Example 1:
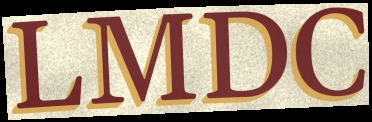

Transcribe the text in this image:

LMDC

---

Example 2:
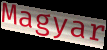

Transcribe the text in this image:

Magyar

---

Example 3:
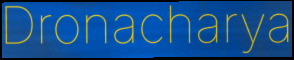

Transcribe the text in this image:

Dronacharya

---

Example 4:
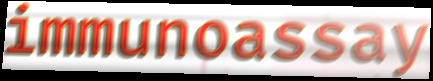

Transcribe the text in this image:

immunoassay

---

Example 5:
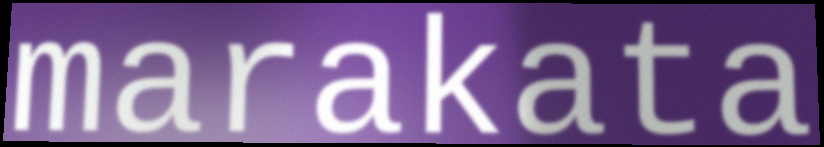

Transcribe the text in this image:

marakata